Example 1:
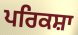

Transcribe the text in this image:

ਪਰਿਕਸ਼ਾ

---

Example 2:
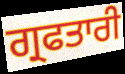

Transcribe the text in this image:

ਗ੍ਰਫਤਾਰੀ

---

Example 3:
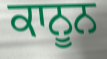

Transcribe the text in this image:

ਕਾਨੂਨ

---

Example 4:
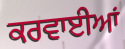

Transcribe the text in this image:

ਕਰਵਾਈਆਂ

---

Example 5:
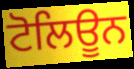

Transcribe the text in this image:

ਟੋਲਿਊਨ